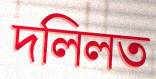
দলিলত